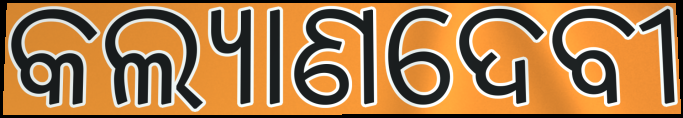
କଲ୍ୟାଣଦେବୀ